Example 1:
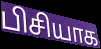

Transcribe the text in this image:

பிசியாக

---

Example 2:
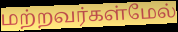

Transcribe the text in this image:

மற்றவர்கள்மேல்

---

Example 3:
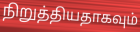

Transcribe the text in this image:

நிறுத்தியதாகவும்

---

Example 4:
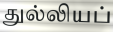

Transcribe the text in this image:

துல்லியப்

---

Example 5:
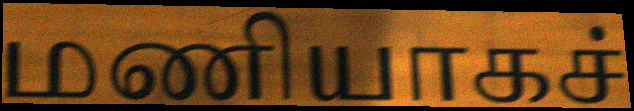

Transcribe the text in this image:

மணியாகச்